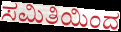
ಸಮಿತಿಯಿಂದ